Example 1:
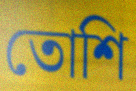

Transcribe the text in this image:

তোশি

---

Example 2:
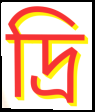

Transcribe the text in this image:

দ্রি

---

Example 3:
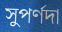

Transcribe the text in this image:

সুপর্ণদা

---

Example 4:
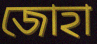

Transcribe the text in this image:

জোহা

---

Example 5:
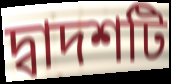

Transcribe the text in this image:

দ্বাদশটি